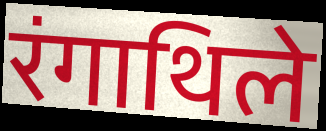
रंगाथिले